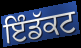
ਇੰਡੱਕਟ